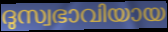
ദുസ്വഭാവിയായ